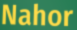
Nahor